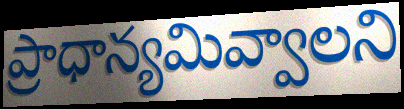
ప్రాధాన్యమివ్వాలని